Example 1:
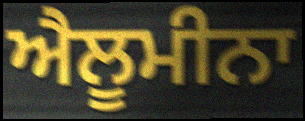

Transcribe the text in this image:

ਐਲੂਮੀਨਾ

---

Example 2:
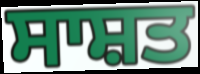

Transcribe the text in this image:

ਸਾਸ਼ਤ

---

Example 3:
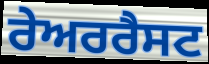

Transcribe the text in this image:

ਰੇਅਰਰੈਸਟ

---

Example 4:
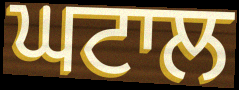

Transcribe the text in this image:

ਘਟਾਲ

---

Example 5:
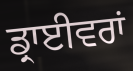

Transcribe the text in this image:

ਡ੍ਰਾਈਵਰਾਂ